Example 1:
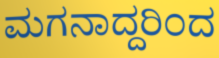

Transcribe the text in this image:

ಮಗನಾದ್ದರಿಂದ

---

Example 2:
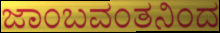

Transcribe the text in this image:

ಜಾಂಬವಂತನಿಂದ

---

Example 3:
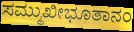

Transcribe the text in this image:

ಸಮ್ಮುಖೀಭೂತಾನಂ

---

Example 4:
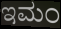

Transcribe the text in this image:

ಇಮಂ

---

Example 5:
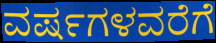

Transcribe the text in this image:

ವರ್ಷಗಳವರೆಗೆ